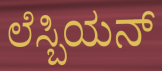
ಲೆಸ್ಬಿಯನ್